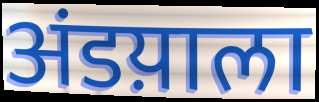
अंडय़ाला